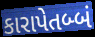
કારાપેતબ્બં